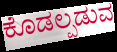
ಕೊಡಲ್ಪಡುವ